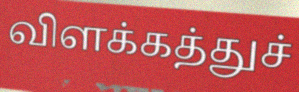
விளக்கத்துச்